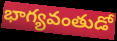
భాగ్యవంతుడో